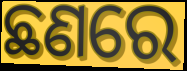
ଛଣରେ